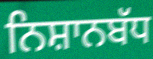
ਨਿਸ਼ਾਨਬੱਧ